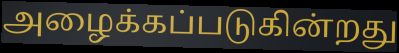
அழைக்கப்படுகின்றது